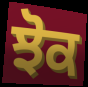
ਝੋਕ